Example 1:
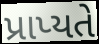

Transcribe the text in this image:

પ્રાપ્યતે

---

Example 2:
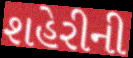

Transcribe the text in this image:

શહેરીની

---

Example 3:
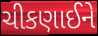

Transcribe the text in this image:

ચીકણાઈને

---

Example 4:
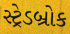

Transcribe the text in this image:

સ્ટ્રેડબ્રોક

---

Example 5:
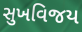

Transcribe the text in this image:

સુખવિજય